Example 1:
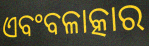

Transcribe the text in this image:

ଏବଂବଳାତ୍କାର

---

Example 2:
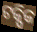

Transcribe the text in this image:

ଟକ୍ସିକ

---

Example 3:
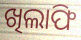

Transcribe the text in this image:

ଖିଲାଫି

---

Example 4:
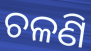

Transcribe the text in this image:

ଚଳଣି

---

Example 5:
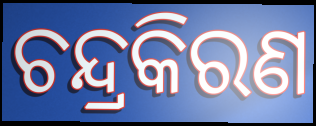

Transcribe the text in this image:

ଚନ୍ଦ୍ରକିରଣ